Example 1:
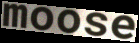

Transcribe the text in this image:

moose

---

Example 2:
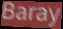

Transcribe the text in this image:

Baray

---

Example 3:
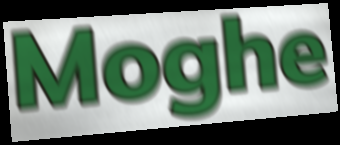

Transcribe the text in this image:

Moghe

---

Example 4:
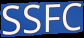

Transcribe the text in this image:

SSFC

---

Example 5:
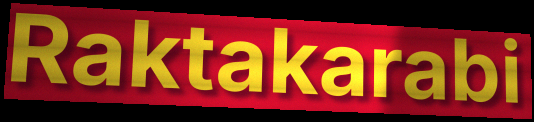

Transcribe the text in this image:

Raktakarabi